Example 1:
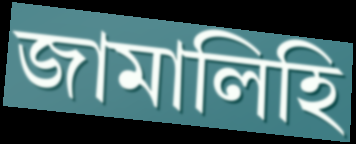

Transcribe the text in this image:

জামালিহি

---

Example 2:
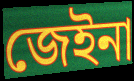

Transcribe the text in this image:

জেইনা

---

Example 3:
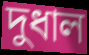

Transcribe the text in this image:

দুধাল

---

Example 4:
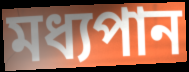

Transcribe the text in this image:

মধ্যপান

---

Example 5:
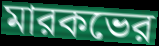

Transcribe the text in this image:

মারকভের